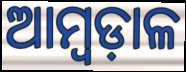
ଆମ୍ବଡ଼ାଳ